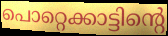
പൊറ്റെക്കാട്ടിന്റെ